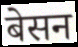
बेसन